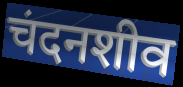
चंदनशीव